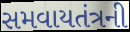
સમવાયતંત્રની